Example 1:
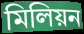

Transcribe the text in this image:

মিলিয়ন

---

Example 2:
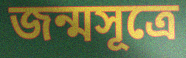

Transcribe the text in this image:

জন্মসূত্ৰে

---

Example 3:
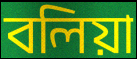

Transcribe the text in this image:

বলিয়া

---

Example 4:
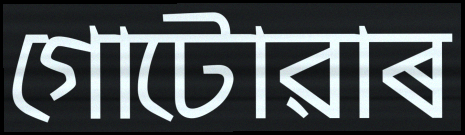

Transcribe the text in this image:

গোটোৱাৰ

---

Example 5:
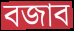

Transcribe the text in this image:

বজাব